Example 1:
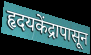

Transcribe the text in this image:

हृदयकेंद्रापासून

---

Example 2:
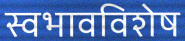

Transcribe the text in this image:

स्वभावविशेष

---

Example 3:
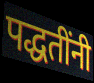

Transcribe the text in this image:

पद्धतींनी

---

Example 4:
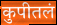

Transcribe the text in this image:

कुपीतलं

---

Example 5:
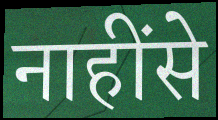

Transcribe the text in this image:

नाहींसे